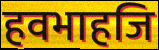
हवभाहजि